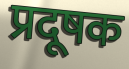
प्रदूषक